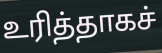
உரித்தாகச்